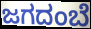
ಜಗದಂಬೆ